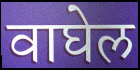
वाघेल